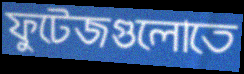
ফুটেজগুলোতে